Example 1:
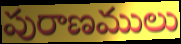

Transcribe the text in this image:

పురాణములు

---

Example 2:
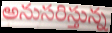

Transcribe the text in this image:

అనుసరిస్తున్న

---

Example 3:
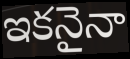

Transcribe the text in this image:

ఇకనైనా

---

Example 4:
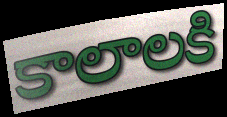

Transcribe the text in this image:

కాలాలకి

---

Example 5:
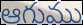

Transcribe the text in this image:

ఆగుము